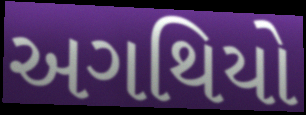
અગથિયો